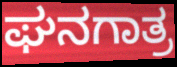
ಘನಗಾತ್ರ